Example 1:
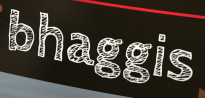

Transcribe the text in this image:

bhaggis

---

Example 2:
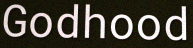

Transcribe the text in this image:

Godhood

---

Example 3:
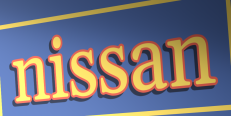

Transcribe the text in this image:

nissan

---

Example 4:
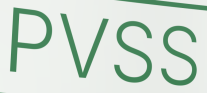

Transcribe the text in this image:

PVSS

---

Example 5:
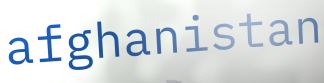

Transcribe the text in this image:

afghanistan